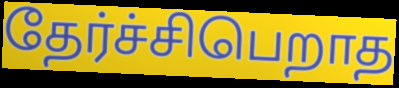
தேர்ச்சிபெறாத